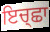
ਇਚ੍ਛਾ